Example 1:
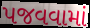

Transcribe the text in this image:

પજવવામાં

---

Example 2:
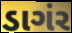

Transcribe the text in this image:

ડાગંર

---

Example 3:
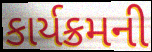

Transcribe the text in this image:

કાર્યક્રમની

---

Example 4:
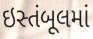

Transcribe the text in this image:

ઇસ્તંબૂલમાં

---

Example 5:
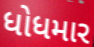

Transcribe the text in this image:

ધોધમાર